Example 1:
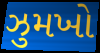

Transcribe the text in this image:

ઝુમખો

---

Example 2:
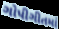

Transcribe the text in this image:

ગોપીગીતમાં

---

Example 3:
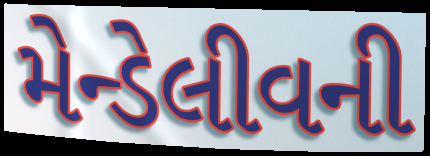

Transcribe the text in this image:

મેન્ડેલીવની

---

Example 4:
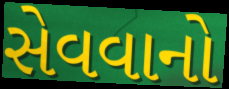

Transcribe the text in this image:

સેવવાનો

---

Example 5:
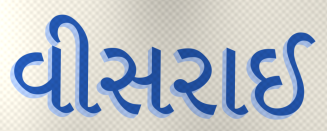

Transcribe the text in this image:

વીસરાઈ